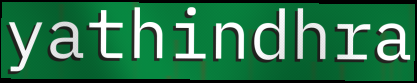
yathindhra